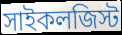
সাইকলজিস্ট